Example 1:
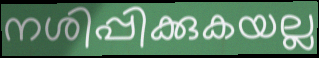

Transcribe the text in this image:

നശിപ്പിക്കുകയല്ല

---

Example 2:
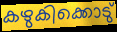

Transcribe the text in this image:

കഴുകിക്കൊടു്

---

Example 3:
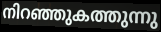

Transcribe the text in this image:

നിറഞ്ഞുകത്തുന്നു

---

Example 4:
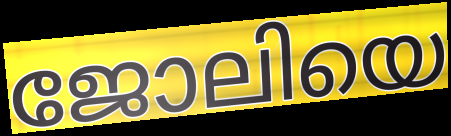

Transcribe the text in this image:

ജോലിയെ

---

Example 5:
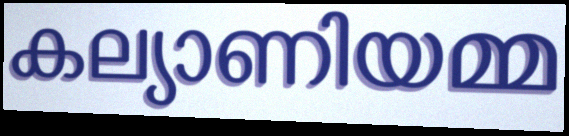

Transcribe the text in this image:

കല്യാണിയമ്മ